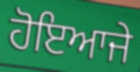
ਹੋਇਆਜੇ